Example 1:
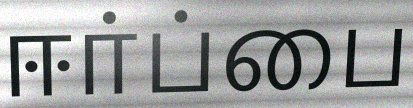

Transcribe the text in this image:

ஈர்ப்பை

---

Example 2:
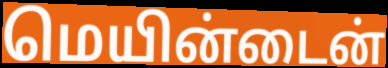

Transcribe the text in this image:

மெயின்டைன்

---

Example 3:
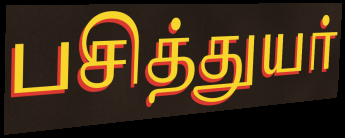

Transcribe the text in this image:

பசித்துயர்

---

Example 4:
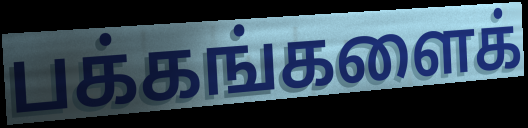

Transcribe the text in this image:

பக்கங்களைக்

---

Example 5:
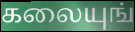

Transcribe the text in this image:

கலையுங்